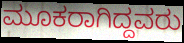
ಮೂಕರಾಗಿದ್ದವರು